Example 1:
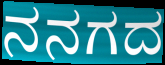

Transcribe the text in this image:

ನನಗದ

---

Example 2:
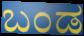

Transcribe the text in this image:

ಬಂಡ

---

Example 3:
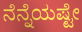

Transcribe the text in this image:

ನೆನ್ನೆಯಷ್ಟೇ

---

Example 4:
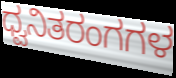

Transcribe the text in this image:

ಧ್ವನಿತರಂಗಗಳ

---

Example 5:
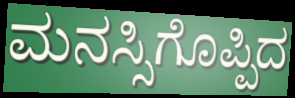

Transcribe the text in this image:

ಮನಸ್ಸಿಗೊಪ್ಪಿದ